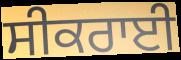
ਸੀਕਰਾਈ